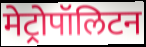
मेट्रोपॉलिटन